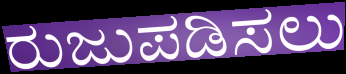
ರುಜುಪಡಿಸಲು